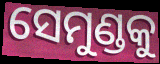
ସେମୁଣ୍ଡକୁ